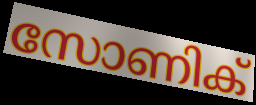
സോണിക്